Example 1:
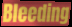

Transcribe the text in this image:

Bleeding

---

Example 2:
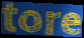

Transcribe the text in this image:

tore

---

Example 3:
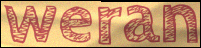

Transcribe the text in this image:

weran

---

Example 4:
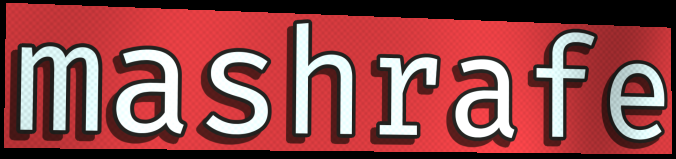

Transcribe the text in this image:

mashrafe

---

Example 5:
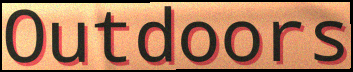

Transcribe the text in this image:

Outdoors